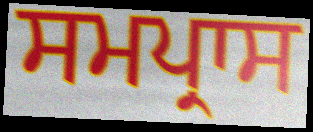
ਸਮਪ੍ਰਾਸ